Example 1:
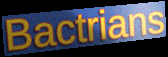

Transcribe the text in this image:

Bactrians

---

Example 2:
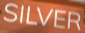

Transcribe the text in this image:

SILVER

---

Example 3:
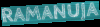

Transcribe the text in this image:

RAMANUJA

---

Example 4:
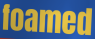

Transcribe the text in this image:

foamed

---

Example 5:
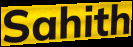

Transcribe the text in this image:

Sahith